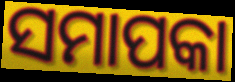
ସମାପକା